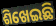
ଶିଖେଇଛି